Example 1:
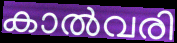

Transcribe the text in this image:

കാൽവരി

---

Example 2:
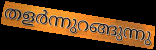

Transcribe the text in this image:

തളർന്നുറങ്ങുന്നു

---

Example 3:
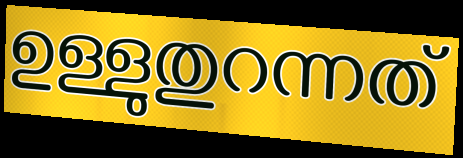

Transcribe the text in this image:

ഉള്ളുതുറന്നത്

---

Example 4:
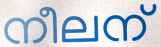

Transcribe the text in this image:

നീലന്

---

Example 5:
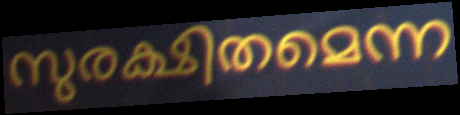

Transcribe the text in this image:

സുരക്ഷിതമെന്ന